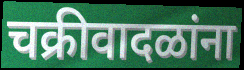
चक्रीवादळांना